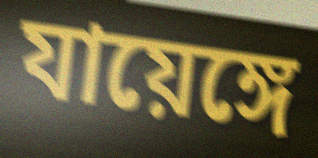
যায়েঙ্গে